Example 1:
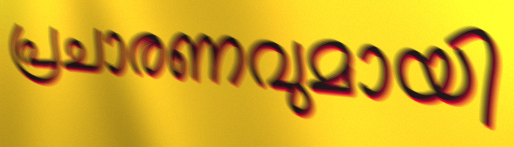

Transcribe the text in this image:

പ്രചാരണവുമായി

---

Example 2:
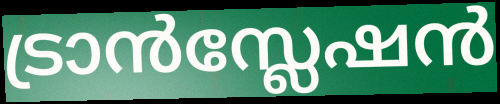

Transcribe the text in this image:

ട്രാൻസ്ലേഷൻ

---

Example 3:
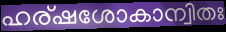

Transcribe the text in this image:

ഹര്ഷശോകാന്വിതഃ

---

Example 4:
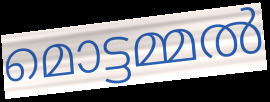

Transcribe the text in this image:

മൊട്ടമ്മൽ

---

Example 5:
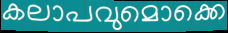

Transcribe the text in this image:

കലാപവുമൊക്കെ